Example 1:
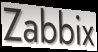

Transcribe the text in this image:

Zabbix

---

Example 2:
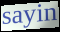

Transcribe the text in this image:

sayin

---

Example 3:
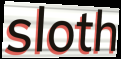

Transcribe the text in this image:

sloth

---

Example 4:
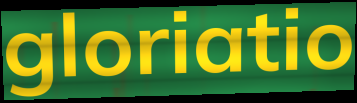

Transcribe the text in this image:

gloriatio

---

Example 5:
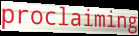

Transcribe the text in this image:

proclaiming